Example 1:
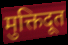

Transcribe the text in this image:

मुक्तिदूत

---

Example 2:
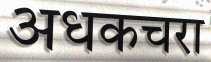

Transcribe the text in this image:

अधकचरा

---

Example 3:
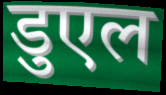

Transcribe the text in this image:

डुएल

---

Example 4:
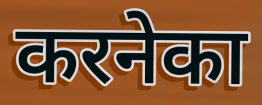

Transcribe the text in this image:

करनेका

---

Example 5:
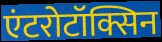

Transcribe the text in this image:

एंटरोटॉक्सिन